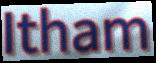
Itham